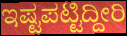
ಇಷ್ಟಪಟ್ಟಿದ್ದೀರಿ